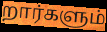
றார்களும்